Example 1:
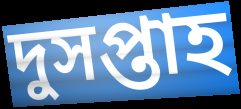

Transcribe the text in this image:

দুসপ্তাহ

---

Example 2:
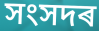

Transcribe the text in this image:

সংসদৰ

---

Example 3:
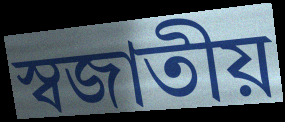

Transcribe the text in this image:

স্বজাতীয়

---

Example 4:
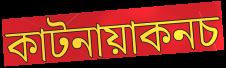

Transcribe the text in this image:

কাটনায়াকনচ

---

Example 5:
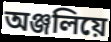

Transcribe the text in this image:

অঞ্জলিয়ে